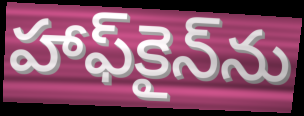
హాఫ్‌కైన్‌ను